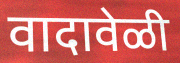
वादावेळी